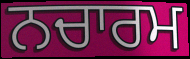
ਨਚਾਰਮ